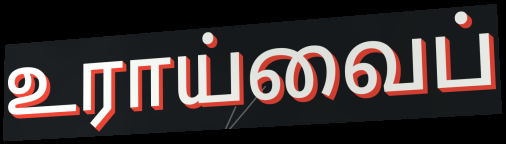
உராய்வைப்